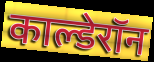
काल्डेरॉन